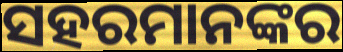
ସହରମାନଙ୍କର